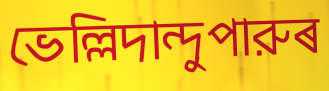
ভেল্লিদান্দুপাৰুৰ